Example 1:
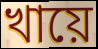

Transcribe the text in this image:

খায়ে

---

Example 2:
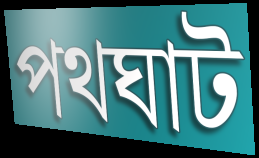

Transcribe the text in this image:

পথঘাট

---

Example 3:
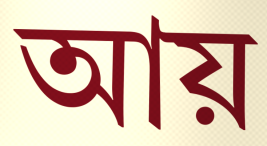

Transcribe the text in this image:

আয়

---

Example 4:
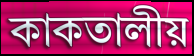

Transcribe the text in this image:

কাকতালীয়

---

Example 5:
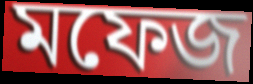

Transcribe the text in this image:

মফেজ